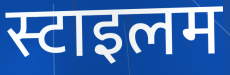
स्टाइलम